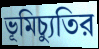
ভূমিচ্যুতির